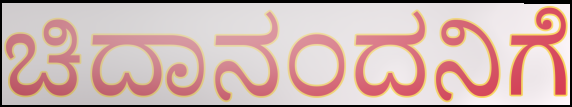
ಚಿದಾನಂದನಿಗೆ